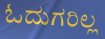
ಓದುಗರಿಲ್ಲ